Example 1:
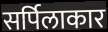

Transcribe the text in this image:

सर्पिलाकार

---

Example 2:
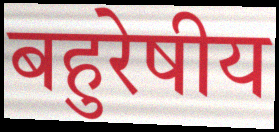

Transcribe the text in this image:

बहुरेषीय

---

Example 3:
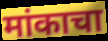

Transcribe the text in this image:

मांकाचा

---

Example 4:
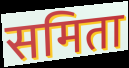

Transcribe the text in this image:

समिता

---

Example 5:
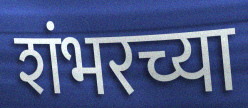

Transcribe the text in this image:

शंभरच्या